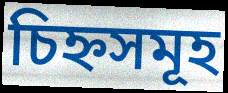
চিহ্নসমূহ